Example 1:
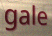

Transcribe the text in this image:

gale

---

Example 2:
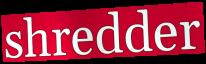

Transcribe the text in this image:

shredder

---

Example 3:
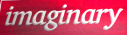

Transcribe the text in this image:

imaginary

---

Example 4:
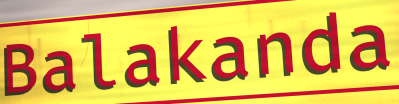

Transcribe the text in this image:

Balakanda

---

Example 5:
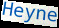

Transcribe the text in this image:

Heyne